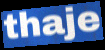
thaje